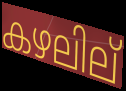
കഴലില്